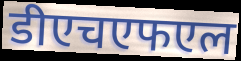
डीएचएफएल